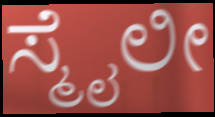
ಸ್ಮೈಲೀ